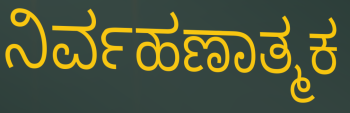
ನಿರ್ವಹಣಾತ್ಮಕ